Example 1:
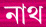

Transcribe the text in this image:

নাথ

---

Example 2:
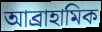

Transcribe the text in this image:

আব্ৰাহামিক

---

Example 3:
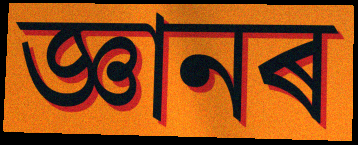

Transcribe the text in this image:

জ্ঞানৰ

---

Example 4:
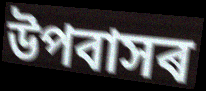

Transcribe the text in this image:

উপবাসৰ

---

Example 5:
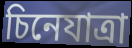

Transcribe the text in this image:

চিনেযাত্ৰা